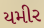
યમીર